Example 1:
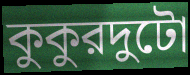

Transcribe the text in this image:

কুকুরদুটো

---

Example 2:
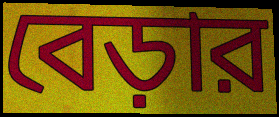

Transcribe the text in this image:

বেড়ার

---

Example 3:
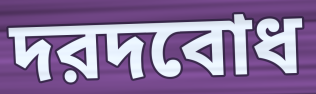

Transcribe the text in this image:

দরদবোধ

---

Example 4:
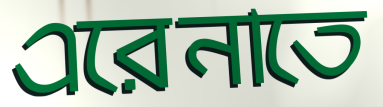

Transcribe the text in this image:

এরেনাতে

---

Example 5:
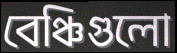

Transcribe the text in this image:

বেঞ্চিগুলো